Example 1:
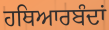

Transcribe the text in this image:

ਹਥਿਆਰਬੰਦਾਂ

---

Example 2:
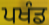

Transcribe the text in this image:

ਪਖੰਡ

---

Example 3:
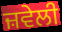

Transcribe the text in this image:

ਜ਼ਵੇਲੀ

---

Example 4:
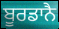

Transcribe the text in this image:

ਬੂਰਡਾਨੈ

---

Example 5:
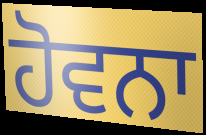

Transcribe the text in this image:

ਹੋਵਨਾ